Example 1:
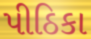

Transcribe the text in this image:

પીઠિકા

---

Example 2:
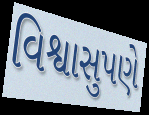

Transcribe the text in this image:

વિશ્વાસુપણે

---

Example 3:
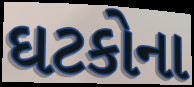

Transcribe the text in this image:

ઘટકોના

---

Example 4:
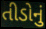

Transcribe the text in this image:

તીડોનું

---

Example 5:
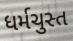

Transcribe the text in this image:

ધર્મચુસ્ત